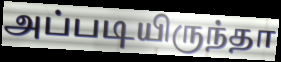
அப்படியிருந்தா